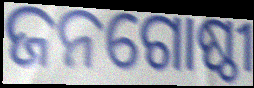
ଜନଗୋଷ୍ଠୀ